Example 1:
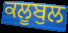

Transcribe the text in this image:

ਕਲੂਬੁਲ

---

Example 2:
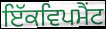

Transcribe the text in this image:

ਇੱਕਵਿਪਮੈਂਟ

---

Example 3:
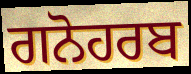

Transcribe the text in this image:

ਗਨੋਹਰਬ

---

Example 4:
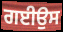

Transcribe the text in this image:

ਗਈਉਸ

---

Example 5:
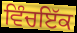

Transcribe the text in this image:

ਵਿੰਚਇੱਕ